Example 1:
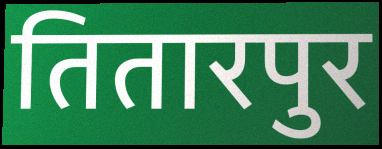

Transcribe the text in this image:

तितारपुर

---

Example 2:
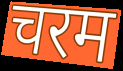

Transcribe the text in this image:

चरम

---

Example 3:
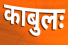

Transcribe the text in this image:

काबुलः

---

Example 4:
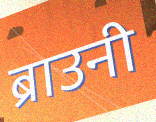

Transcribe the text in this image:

ब्राउनी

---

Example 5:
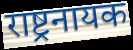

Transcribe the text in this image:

राष्ट्रनायक